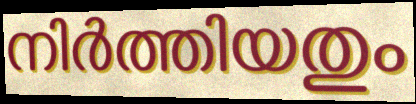
നിർത്തിയതും